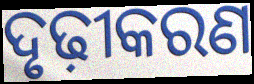
ଦୃଢ଼ୀକରଣ